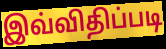
இவ்விதிப்படி